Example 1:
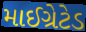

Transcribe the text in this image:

માઈગ્રેટેડ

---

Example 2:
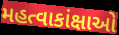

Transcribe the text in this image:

મહત્વાકાંક્ષાઓ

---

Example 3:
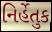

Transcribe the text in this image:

નિર્હેતુક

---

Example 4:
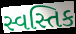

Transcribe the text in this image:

સ્વસ્તિક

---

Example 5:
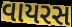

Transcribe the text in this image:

વાયરસ